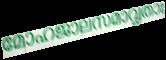
മോഹജാലസമാവൃതാഃ